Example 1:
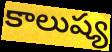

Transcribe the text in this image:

కాలుష్య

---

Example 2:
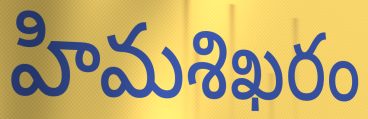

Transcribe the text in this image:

హిమశిఖరం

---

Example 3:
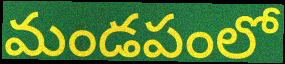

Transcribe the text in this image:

మండపంలో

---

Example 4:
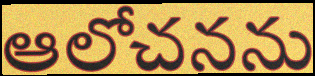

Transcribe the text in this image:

ఆలోచనను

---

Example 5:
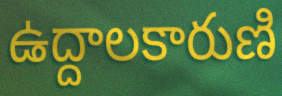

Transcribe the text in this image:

ఉద్దాలకారుణి